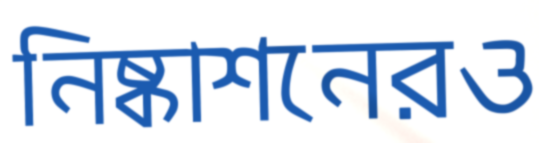
নিষ্কাশনেরও